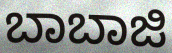
ಬಾಬಾಜಿ